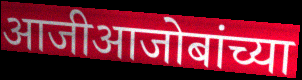
आजीआजोबांच्या